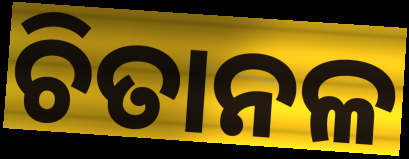
ଚିତାନଳ